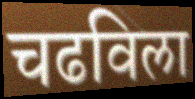
चढविला